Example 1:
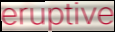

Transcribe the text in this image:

eruptive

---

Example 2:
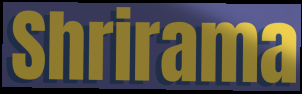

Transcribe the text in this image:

Shrirama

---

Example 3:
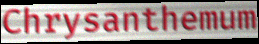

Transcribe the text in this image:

Chrysanthemum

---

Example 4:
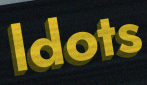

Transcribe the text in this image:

ldots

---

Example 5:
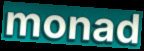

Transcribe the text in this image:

monad